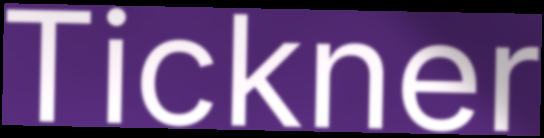
Tickner